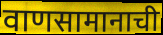
वाणसामानाची